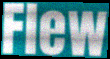
Flew